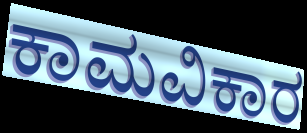
ಕಾಮವಿಕಾರ